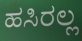
ಹಸಿರಲ್ಲ